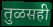
तुळसही